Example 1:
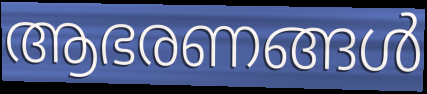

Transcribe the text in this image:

ആഭരണങ്ങൾ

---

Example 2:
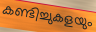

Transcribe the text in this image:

കണ്ടിച്ചുകളയും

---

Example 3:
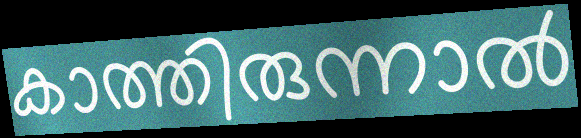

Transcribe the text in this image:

കാത്തിരുന്നാൽ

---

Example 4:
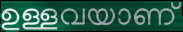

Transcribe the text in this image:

ഉള്ളവയാണ്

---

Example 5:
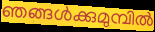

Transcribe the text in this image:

ഞങ്ങൾക്കുമുമ്പിൽ